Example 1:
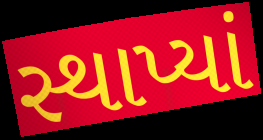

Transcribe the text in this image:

સ્થાપ્યાં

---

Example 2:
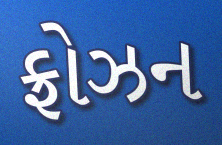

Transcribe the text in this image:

ફ્રોઝન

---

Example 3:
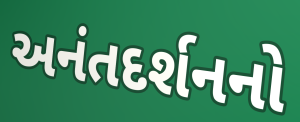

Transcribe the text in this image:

અનંતદર્શનનો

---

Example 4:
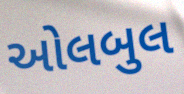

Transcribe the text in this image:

ઓલબુલ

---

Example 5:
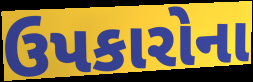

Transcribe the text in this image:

ઉપકારોના